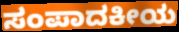
ಸಂಪಾದಕೀಯ